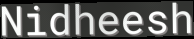
Nidheesh